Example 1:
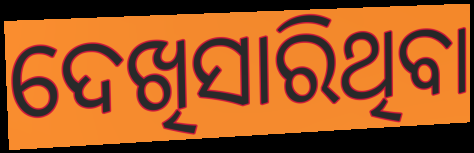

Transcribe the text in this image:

ଦେଖିସାରିଥିବା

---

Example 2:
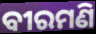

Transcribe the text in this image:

ବୀରମଣି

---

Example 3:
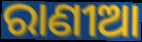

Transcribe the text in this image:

ରାଣୀଆ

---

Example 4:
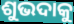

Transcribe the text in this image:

ଶୁଭଦାକୁ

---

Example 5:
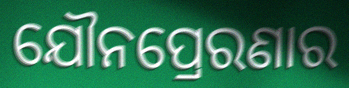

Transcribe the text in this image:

ଯୌନପ୍ରେରଣାର